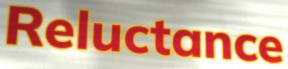
Reluctance